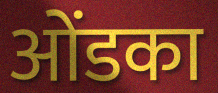
ओंडका